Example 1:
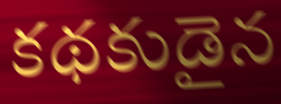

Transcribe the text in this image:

కథకుడైన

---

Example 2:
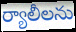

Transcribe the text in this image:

ర్యాలీలను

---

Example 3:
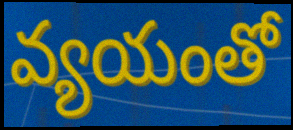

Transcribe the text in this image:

వ్యయంతో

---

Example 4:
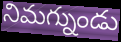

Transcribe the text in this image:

నిమగ్నుండు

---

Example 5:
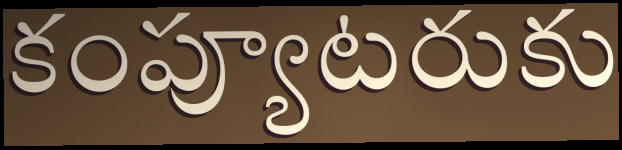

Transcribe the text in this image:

కంప్యూటరుకు